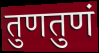
तुणतुणं